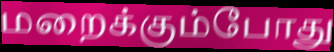
மறைக்கும்போது